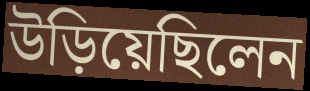
উড়িয়েছিলেন